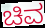
ಚಿವ